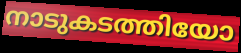
നാടുകടത്തിയോ